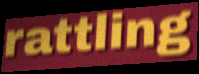
rattling